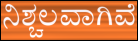
ನಿಶ್ಚಲವಾಗಿವೆ